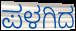
ಪಳಗಿದ